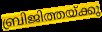
ബ്രിജിത്തയ്ക്കു